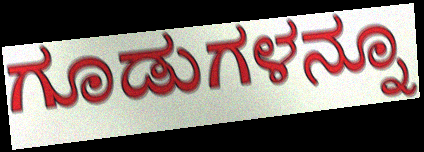
ಗೂಡುಗಳನ್ನೂ